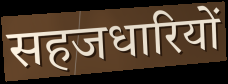
सहजधारियों